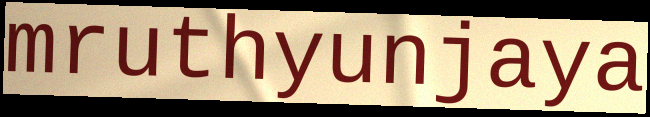
mruthyunjaya